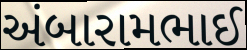
અંબારામભાઈ